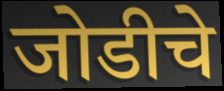
जोडीचे